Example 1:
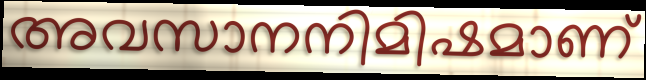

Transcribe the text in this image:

അവസാനനിമിഷമാണ്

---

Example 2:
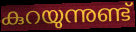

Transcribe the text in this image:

കുറയുന്നുണ്ട്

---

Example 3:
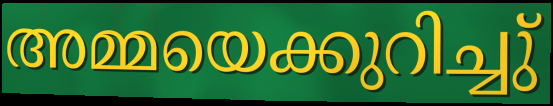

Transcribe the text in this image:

അമ്മയെക്കുറിച്ചു്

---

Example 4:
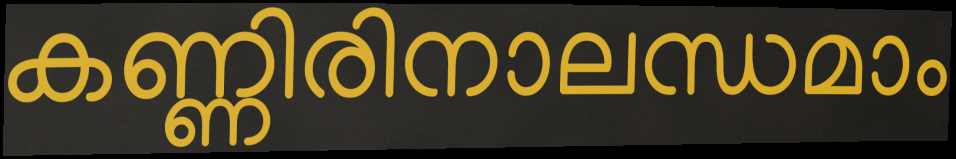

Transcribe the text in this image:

കണ്ണിരിനാലന്ധമാം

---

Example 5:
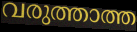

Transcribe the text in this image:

വരുത്താത്ത